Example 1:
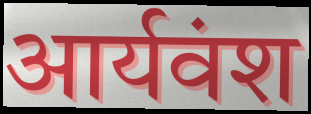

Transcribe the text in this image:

आर्यवंश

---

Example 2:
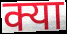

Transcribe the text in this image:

क्या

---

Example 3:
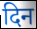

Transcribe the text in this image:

दिन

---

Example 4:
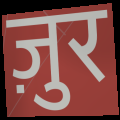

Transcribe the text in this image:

ज़ुर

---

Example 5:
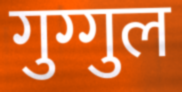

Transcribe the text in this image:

गुग्गुल